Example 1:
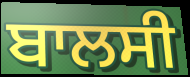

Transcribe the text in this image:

ਬਾਲਸੀ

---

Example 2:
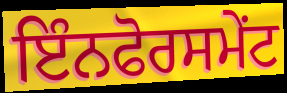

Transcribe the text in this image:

ਇੰਨਫੋਰਸਮੇਂਟ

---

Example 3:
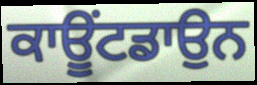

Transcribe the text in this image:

ਕਾਊਂਟਡਾਉਨ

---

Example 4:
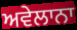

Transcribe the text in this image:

ਅਵੇਲਾਨਾ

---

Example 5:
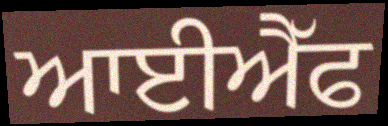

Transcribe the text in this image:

ਆਈਐੱਫ